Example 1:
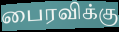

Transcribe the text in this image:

பைரவிக்கு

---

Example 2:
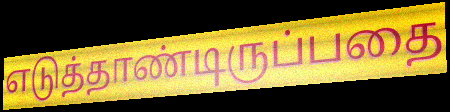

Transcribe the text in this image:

எடுத்தாண்டிருப்பதை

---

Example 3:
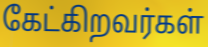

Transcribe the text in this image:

கேட்கிறவர்கள்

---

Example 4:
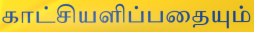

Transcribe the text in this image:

காட்சியளிப்பதையும்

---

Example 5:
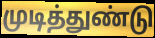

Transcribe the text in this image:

முடித்துண்டு